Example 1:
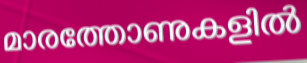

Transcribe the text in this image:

മാരത്തോണുകളിൽ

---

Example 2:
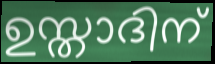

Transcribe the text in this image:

ഉസ്താദിന്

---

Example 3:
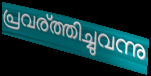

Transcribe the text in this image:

പ്രവര്ത്തിച്ചുവന്നു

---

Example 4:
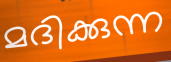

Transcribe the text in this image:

മദിക്കുന്ന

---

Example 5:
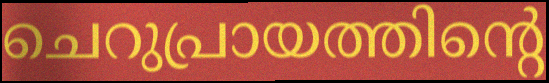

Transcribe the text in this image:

ചെറുപ്രായത്തിന്റെ